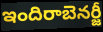
ఇందిరాబెనర్జీ